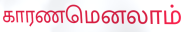
காரணமெனலாம்